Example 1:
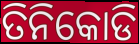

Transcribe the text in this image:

ତିନିକୋଡି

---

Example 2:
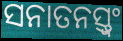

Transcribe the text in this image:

ସନାତନସ୍ତ୍ୱଂ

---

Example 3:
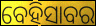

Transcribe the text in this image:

ବେହିସାବର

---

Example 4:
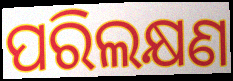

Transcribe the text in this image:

ପରିଲକ୍ଷଣ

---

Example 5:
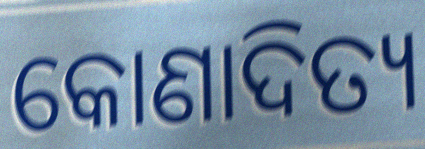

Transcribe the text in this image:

କୋଣାଦିତ୍ୟ